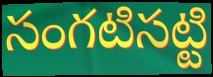
సంగటిసట్టి